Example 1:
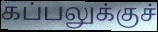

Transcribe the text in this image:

கப்பலுக்குச்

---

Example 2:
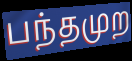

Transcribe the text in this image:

பந்தமுற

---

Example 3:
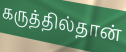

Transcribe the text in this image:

கருத்தில்தான்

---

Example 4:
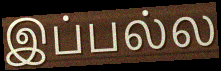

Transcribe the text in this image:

இப்பல்ல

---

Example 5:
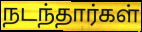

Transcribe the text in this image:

நடந்தார்கள்